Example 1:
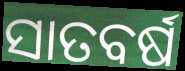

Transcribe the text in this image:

ସାତବର୍ଷ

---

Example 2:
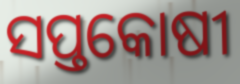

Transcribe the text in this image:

ସପ୍ତକୋଷୀ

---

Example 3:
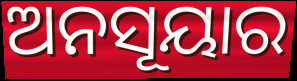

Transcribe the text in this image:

ଅନସୂୟାର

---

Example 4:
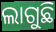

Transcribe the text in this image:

ଲାଗୁଛି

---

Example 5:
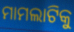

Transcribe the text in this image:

ମାମଲାଟିକୁ